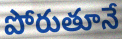
పోరుతూనే